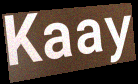
Kaay